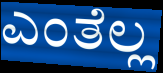
ಎಂತೆಲ್ಲ